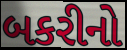
બકરીનો